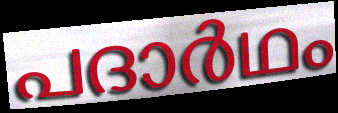
പദാർഥം